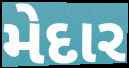
મેદાર